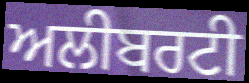
ਅਲੀਬਰਟੀ